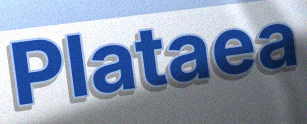
Plataea